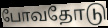
போவதோடு